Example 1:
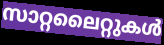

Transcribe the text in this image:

സാറ്റലൈറ്റുകൾ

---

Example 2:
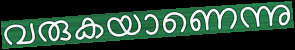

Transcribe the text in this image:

വരുകയാണെന്നു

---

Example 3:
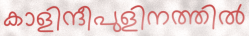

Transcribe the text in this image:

കാളിന്ദീപുളിനത്തിൽ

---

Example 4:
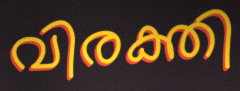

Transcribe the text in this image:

വിരക്തി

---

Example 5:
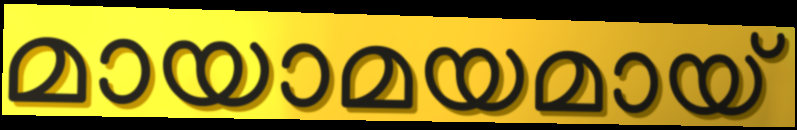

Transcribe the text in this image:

മായാമയമായ്